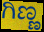
ಗಿಣ್ಣ